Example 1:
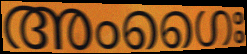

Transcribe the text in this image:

അംഗൈഃ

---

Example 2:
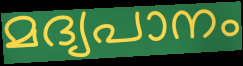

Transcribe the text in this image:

മദ്യപാനം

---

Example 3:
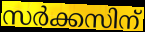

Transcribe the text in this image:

സർക്കസിന്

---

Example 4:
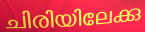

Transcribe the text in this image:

ചിരിയിലേക്കു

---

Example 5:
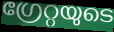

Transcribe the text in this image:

ഗ്രേറ്റയുടെ